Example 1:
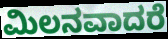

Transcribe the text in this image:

ಮಿಲನವಾದರೆ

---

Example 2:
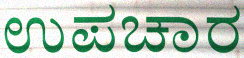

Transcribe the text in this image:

ಉಪಚಾರ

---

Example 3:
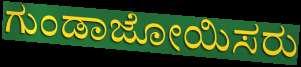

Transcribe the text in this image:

ಗುಂಡಾಜೋಯಿಸರು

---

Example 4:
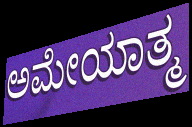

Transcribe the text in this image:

ಅಮೇಯಾತ್ಮ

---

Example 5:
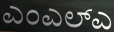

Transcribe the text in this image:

ಎಂಎಲ್ಎ